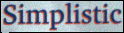
Simplistic